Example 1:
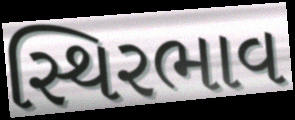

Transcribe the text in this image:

સ્થિરભાવ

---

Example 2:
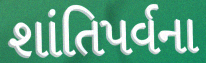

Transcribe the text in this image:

શાંતિપર્વના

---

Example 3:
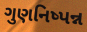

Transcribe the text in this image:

ગુણનિષ્પન્ન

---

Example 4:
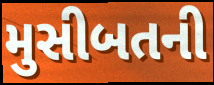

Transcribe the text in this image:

મુસીબતની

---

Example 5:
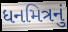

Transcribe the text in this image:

ધનમિત્રનું